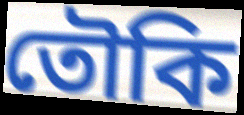
তৌকি